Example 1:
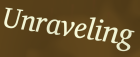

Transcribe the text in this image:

Unraveling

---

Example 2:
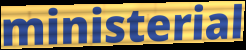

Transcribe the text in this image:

ministerial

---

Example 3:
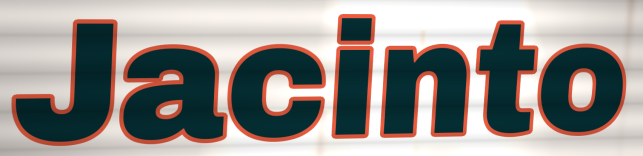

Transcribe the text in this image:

Jacinto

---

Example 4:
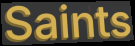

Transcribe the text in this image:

Saints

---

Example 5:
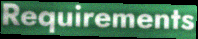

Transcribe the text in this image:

Requirements